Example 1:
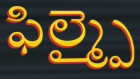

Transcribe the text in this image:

ఫిల్మ్పై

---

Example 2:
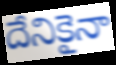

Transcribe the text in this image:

దేనికైనా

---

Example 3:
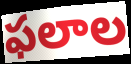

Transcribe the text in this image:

ఫలాల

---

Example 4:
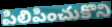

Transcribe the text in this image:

పిలిపించుకొని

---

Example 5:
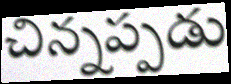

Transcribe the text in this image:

చిన్నప్పడు